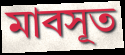
মাবসূত